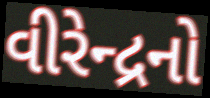
વીરેન્દ્રનો